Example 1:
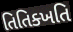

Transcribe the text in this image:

તિતિક્ખતિ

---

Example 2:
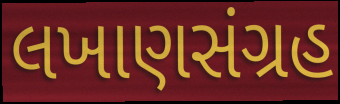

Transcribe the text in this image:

લખાણસંગ્રહ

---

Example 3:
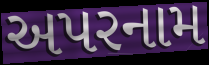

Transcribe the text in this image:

અપરનામ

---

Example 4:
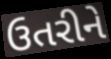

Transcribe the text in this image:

ઉતરીને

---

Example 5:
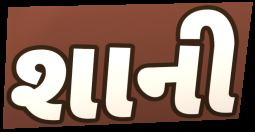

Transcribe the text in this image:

શાની